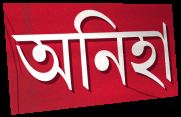
অনিহা